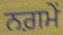
ਨਗ਼ਮੇਂ